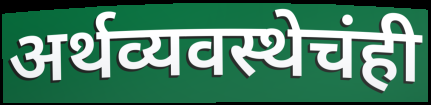
अर्थव्यवस्थेचंही